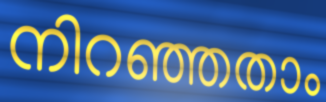
നിറഞ്ഞതാം